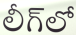
లీగ్‌లో